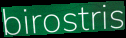
birostris